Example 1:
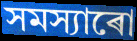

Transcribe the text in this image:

সমস্যাৰো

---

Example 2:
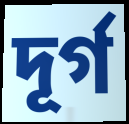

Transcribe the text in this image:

দূৰ্গ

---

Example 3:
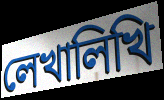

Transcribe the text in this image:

লেখালিখি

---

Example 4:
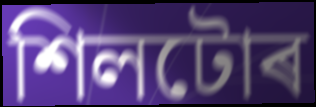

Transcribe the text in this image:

শিলটোৰ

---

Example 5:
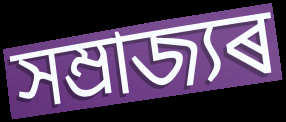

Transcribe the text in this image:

সম্ৰাজ্যৰ